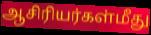
ஆசிரியர்கள்மீது